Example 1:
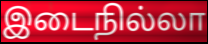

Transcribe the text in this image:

இடைநில்லா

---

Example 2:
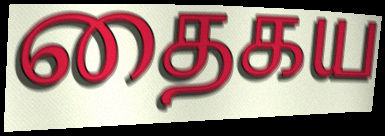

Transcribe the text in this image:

தைகய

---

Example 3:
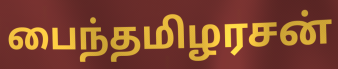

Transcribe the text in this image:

பைந்தமிழரசன்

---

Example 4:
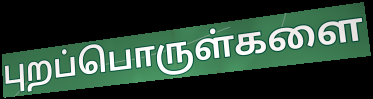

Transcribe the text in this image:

புறப்பொருள்களை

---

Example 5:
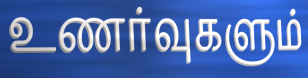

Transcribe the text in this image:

உணர்வுகளும்